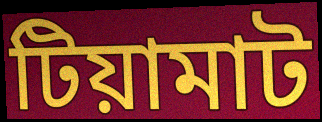
টিয়ামাট